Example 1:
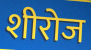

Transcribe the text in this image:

शीरोज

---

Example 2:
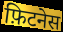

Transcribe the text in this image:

फ़िटनेस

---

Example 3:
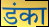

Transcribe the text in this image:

डंका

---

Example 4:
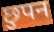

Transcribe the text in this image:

छुपन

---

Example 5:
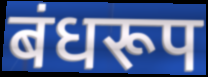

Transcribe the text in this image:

बंधरूप